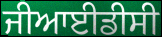
ਜੀਆਈਡੀਸੀ